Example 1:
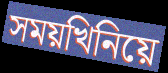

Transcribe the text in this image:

সময়খিনিয়ে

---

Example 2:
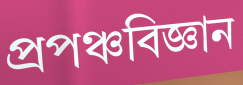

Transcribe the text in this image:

প্ৰপঞ্চবিজ্ঞান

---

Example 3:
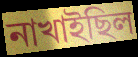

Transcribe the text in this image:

নাখাইছিল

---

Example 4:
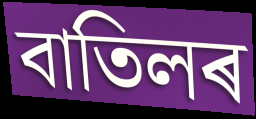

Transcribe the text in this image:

বাতিলৰ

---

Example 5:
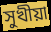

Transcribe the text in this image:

সুখীয়া